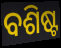
ବଶିଷ୍ଟ